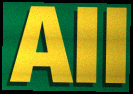
AII